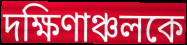
দক্ষিণাঞ্চলকে